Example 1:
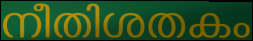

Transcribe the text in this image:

നീതിശതകം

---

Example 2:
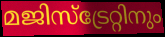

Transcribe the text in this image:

മജിസ്ട്രേറ്റിനും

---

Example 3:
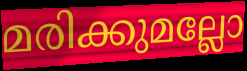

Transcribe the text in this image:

മരിക്കുമല്ലോ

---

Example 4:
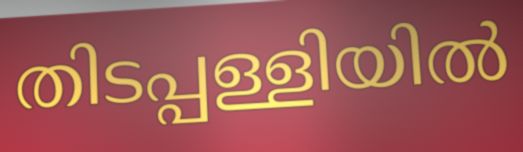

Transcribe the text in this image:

തിടപ്പള്ളിയിൽ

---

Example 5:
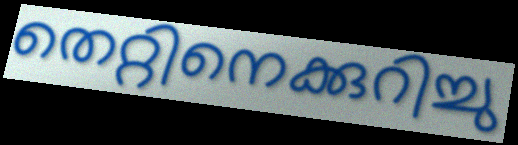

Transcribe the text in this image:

തെറ്റിനെക്കുറിച്ചു